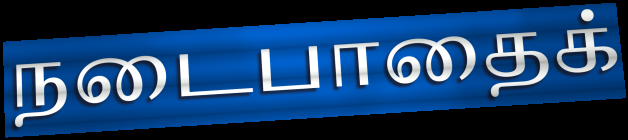
நடைபாதைக்